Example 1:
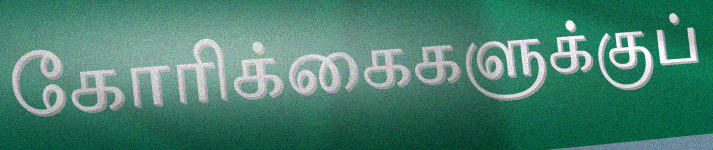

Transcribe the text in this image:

கோரிக்கைகளுக்குப்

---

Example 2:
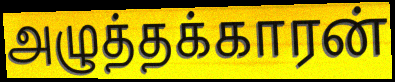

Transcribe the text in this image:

அழுத்தக்காரன்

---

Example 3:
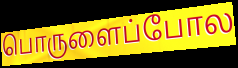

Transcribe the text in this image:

பொருளைப்போல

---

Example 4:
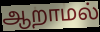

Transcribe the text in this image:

ஆறாமல்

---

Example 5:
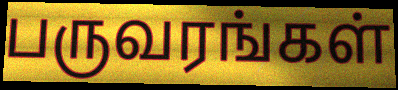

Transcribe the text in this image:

பருவரங்கள்